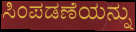
ಸಿಂಪಡಣೆಯನ್ನು